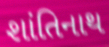
શાંતિનાથ